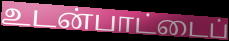
உடன்பாட்டைப்